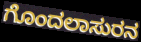
ಗೊಂದಲಾಸುರನ